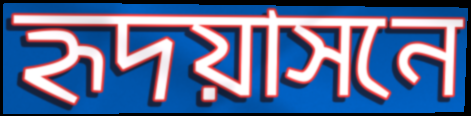
হৃদয়াসনে